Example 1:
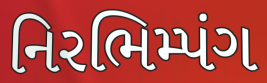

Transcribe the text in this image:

નિરભિમ્પંગ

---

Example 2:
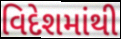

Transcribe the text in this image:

વિદેશમાંથી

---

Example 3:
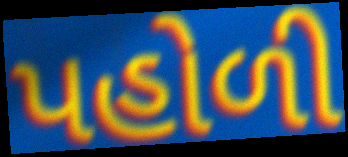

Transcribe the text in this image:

પહોળી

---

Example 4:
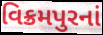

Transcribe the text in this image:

વિક્રમપુરનાં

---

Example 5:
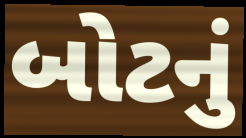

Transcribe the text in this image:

બોટનું